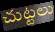
చుట్టలు